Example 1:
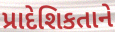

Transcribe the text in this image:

પ્રાદેશિકતાને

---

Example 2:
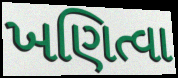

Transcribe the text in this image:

ખણિત્વા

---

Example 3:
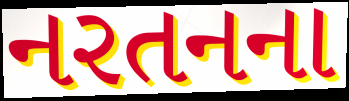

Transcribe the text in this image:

નરતનના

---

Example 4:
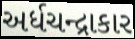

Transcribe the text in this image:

અર્ધચન્દ્રાકાર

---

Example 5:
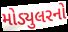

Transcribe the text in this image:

મોડ્યુલરનો